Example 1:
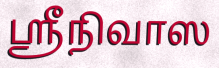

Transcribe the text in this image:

ஸ்ரீநிவாஸ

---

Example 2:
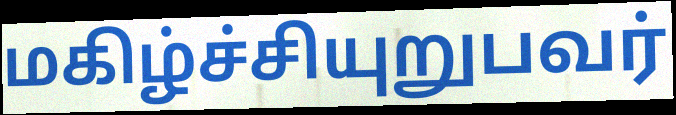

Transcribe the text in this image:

மகிழ்ச்சியுறுபவர்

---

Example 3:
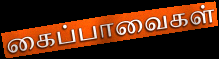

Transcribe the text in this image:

கைப்பாவைகள்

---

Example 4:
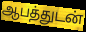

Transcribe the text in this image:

ஆபத்துடன்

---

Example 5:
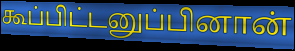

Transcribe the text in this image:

கூப்பிட்டனுப்பினான்